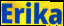
Erika